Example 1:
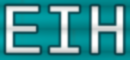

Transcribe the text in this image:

EIH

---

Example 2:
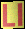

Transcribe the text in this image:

LI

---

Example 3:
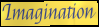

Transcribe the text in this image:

Imagination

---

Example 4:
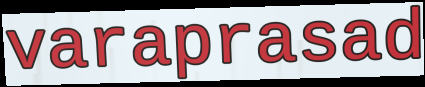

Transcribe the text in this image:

varaprasad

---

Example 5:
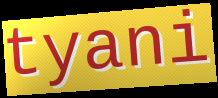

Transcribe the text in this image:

tyani